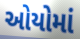
ઓયોમાં